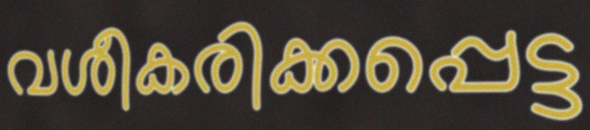
വശീകരിക്കപ്പെട്ട